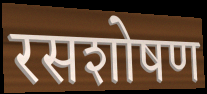
रसशोषण